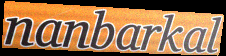
nanbarkal